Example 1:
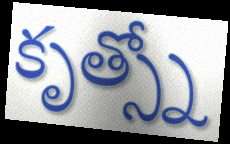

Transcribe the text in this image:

కృత్స్నో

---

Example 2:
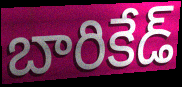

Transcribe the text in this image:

బారికేడ్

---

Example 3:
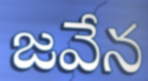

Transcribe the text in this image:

జవేన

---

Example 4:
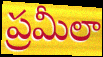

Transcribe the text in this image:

ప్రమీలా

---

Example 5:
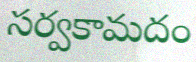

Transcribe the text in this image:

సర్వకామదం